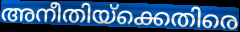
അനീതിയ്ക്കെതിരെ